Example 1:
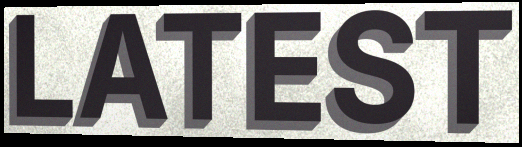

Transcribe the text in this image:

LATEST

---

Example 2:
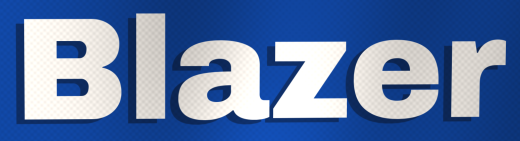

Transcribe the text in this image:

Blazer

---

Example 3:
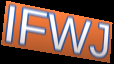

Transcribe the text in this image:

IFWJ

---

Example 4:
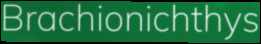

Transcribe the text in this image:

Brachionichthys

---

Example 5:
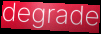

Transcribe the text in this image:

degrade